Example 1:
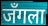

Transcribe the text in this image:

जँगला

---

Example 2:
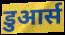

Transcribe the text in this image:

डुआर्स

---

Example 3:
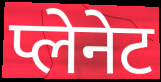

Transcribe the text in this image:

प्लेनेट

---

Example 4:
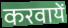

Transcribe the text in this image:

करवायें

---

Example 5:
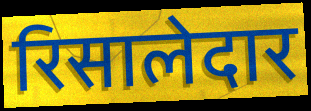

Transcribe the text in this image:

रिसालेदार